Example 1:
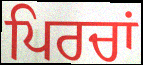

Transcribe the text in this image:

ਪਿਰਚਾਂ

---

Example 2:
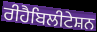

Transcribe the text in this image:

ਰੀਹੈਬਿਲੀਟੇਸ਼ਨ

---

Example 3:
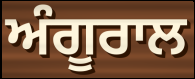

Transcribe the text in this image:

ਅੰਗੂਰਾਲ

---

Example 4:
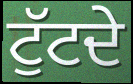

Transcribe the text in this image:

ਟੁੱਟਦੇ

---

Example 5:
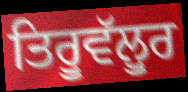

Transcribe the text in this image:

ਤਿਰੂਵੱਲੂਰ